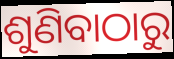
ଶୁଣିବାଠାରୁ